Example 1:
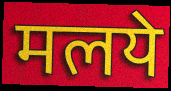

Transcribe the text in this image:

मलये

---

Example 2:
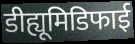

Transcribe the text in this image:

डीह्यूमिडिफाई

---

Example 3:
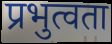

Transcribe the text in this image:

प्रभुत्वता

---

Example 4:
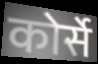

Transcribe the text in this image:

कोर्से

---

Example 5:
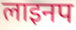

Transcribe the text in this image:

लाइनप